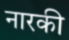
नारकी